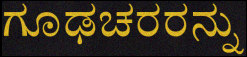
ಗೂಢಚರರನ್ನು